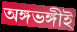
অঙ্গভঙ্গীই